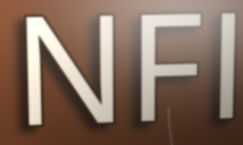
NFI